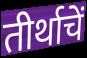
तीर्थाचें